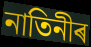
নাতিনীৰ